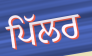
ਪਿੱਲਰ